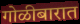
गोळीबारात